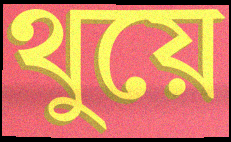
থুয়ে